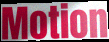
Motion